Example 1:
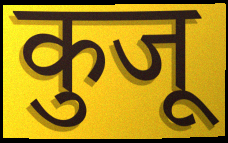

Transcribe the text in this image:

कुजू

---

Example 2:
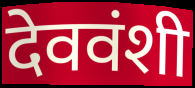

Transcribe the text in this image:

देववंशी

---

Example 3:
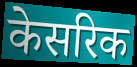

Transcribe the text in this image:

केसरिक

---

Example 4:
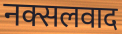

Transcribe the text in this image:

नक्सलवाद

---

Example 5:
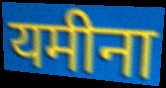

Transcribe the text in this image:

यमीना